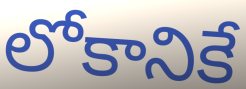
లోకానికే